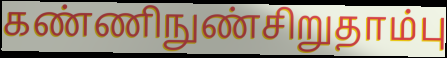
கண்ணிநுண்சிறுதாம்பு